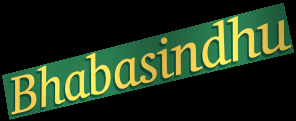
Bhabasindhu